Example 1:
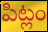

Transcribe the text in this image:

పిట్లం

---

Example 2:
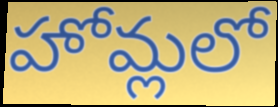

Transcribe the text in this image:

హోమ్లలో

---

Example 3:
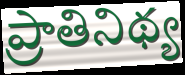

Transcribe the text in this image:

ప్రాతినిథ్య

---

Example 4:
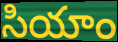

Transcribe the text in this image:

సియాం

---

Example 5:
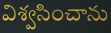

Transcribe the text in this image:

విశ్వసించాను